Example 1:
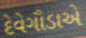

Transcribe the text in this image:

દેવેગૌડાએ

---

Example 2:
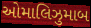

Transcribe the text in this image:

ઓમાલિઝુમાબ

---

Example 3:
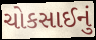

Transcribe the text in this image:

ચોકસાઈનું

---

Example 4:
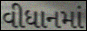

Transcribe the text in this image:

વીધાનમાં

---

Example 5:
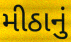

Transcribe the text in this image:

મીઠાનું